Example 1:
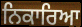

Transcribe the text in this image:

ਨਿਕਾਰਿਆ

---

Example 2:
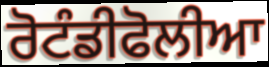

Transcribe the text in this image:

ਰੋਟੰਡੀਫੋਲੀਆ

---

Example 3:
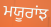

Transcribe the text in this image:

ਮਯੂਰਾਂਝ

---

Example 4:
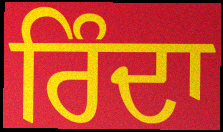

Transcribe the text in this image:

ਰਿੰਦਾ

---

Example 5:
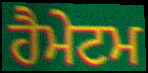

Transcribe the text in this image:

ਹੈਮੇਟਮ